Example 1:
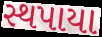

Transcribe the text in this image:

સ્થપાયા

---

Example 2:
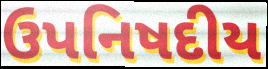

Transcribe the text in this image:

ઉપનિષદીય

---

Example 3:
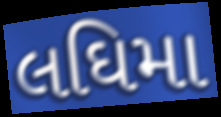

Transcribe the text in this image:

લઘિમા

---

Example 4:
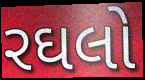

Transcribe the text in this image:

રઘલો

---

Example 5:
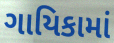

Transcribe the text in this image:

ગાયિકામાં